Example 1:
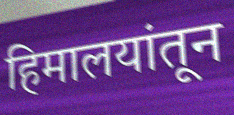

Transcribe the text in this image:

हिमालयांतून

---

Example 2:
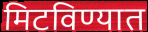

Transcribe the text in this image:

मिटविण्यात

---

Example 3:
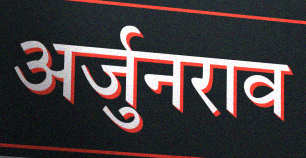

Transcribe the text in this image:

अर्जुनराव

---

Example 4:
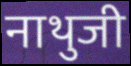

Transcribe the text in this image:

नाथुजी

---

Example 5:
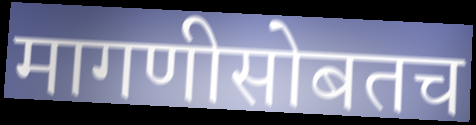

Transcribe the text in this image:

मागणीसोबतच